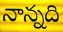
నాన్నది